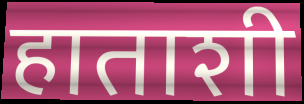
हाताशी